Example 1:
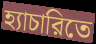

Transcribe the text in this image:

হ্যাচারিতে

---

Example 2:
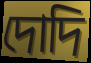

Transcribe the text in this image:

দোদি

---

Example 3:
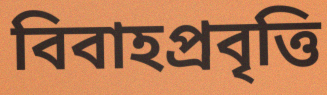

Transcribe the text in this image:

বিবাহপ্রবৃত্তি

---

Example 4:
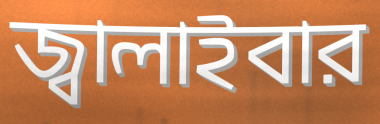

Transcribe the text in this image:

জ্বালাইবার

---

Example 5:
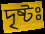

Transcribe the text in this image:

দৃষ্টঃ